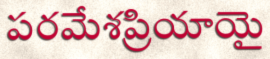
పరమేశప్రియాయై